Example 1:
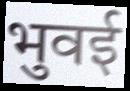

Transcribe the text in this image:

भुवई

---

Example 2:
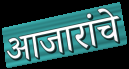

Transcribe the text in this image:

आजारांचे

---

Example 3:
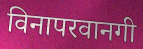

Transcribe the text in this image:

विनापरवानगी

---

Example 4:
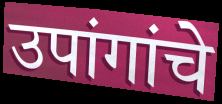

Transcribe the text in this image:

उपांगांचे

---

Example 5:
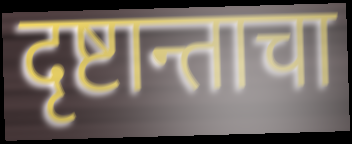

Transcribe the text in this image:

दृष्टान्ताचा